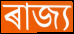
ৰাজ্য